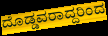
ದೊಡ್ಡವರಾದ್ದರಿಂದ